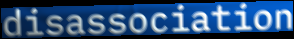
disassociation